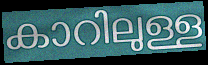
കാറിലുള്ള